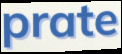
prate